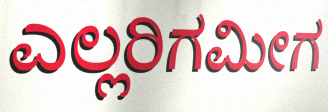
ಎಲ್ಲರಿಗಮೀಗ